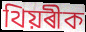
থিয়ৰীক